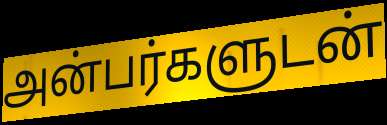
அன்பர்களுடன்